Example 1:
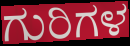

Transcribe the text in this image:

ಗುರಿಗಳ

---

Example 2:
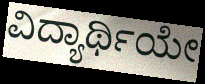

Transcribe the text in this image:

ವಿದ್ಯಾರ್ಥಿಯೇ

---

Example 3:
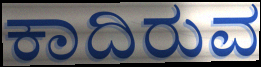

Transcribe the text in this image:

ಕಾದಿರುವ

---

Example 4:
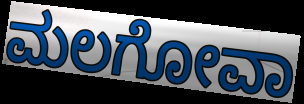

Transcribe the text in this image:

ಮಲಗೋವಾ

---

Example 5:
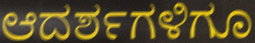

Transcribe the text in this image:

ಆದರ್ಶಗಳಿಗೂ